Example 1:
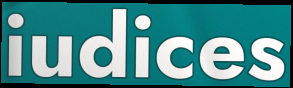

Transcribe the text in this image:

iudices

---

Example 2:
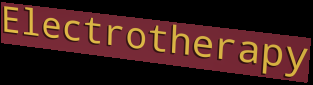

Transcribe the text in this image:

Electrotherapy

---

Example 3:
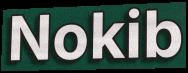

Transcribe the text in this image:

Nokib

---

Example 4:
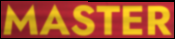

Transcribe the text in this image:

MASTER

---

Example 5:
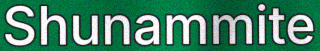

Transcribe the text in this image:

Shunammite